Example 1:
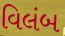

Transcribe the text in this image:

વિલંબ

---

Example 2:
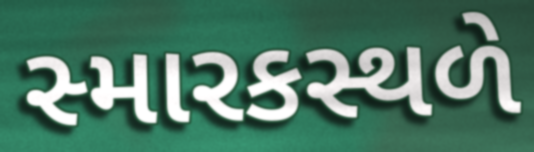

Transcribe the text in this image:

સ્મારકસ્થળે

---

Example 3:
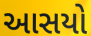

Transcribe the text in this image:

આસયો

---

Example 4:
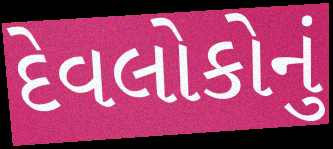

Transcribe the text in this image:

દેવલોકોનું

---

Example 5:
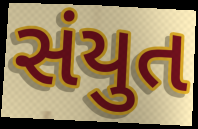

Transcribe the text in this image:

સંયુત